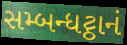
સમ્બન્ધટ્ઠાનં